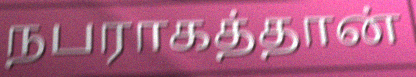
நபராகத்தான்